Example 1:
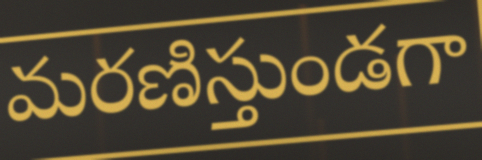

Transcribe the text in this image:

మరణిస్తుండగా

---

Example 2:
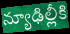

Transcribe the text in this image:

న్యూఢిల్లీకి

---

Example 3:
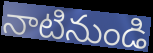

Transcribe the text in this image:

నాటినుండి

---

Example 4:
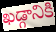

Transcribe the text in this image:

ఖడ్గానికి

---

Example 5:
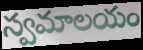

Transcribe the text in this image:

స్వమాలయం